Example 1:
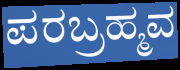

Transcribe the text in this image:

ಪರಬ್ರಹ್ಮವ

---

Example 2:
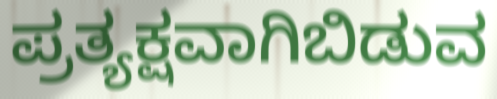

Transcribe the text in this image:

ಪ್ರತ್ಯಕ್ಷವಾಗಿಬಿಡುವ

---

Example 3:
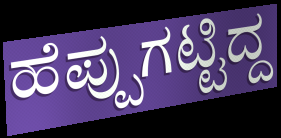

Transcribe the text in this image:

ಹೆಪ್ಪುಗಟ್ಟಿದ್ದ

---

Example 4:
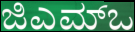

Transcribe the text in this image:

ಜಿಎಮ್ಒ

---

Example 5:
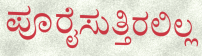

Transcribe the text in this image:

ಪೂರೈಸುತ್ತಿರಲಿಲ್ಲ